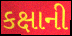
કક્ષાની